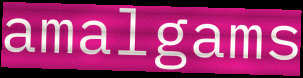
amalgams